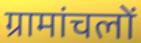
ग्रामांचलों